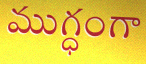
ముగ్ధంగా